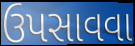
ઉપસાવવા